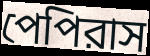
পেপিরাস